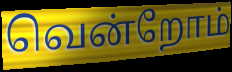
வென்றோம்